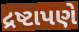
દ્રષ્ટાપણે